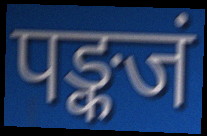
पङ्कजं